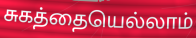
சுகத்தையெல்லாம்